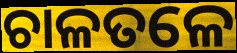
ଚାଳତଳେ